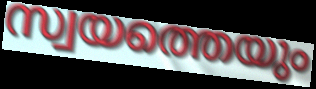
സ്വയത്തെയും